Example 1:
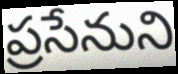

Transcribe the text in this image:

ప్రసేనుని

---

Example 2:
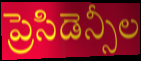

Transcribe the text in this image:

ప్రెసిడెన్సీల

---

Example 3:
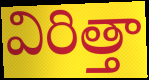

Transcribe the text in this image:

విరిత్తా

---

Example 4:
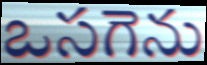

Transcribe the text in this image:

ఒసగెను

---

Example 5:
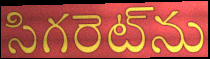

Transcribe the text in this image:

సిగరెట్‌ను